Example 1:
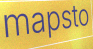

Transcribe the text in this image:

mapsto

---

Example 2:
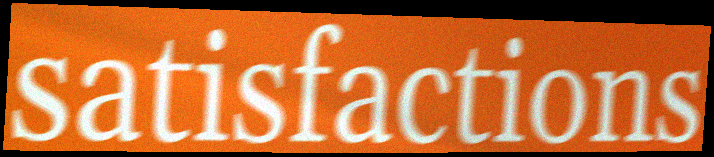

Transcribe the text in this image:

satisfactions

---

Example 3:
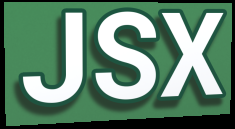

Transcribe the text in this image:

JSX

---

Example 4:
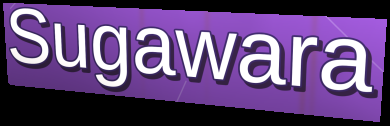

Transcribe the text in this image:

Sugawara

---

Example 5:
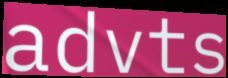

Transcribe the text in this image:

advts